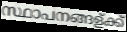
സ്ഥാപനങ്ങള്ക്ക്